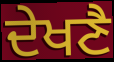
ਦੇਖਣੈ